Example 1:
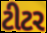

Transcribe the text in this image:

ટીટર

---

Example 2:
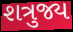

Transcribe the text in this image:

શત્રુજ્ય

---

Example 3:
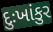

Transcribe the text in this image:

દુઃખાંકુર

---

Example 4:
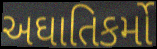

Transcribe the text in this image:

અઘાતિકર્મો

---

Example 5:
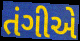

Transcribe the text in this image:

તંગીએ